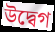
উদ্বেগ